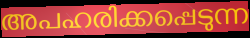
അപഹരിക്കപ്പെടുന്ന